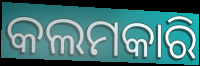
କଲମକାରି